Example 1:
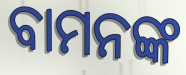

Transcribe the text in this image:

ବାମନଙ୍କ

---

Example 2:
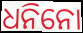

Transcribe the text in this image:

ଧନିନୋ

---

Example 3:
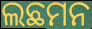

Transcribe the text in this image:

ଲଛମନ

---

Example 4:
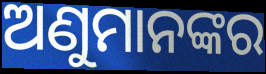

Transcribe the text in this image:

ଅଣୁମାନଙ୍କର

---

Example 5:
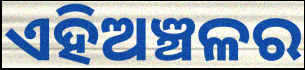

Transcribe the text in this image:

ଏହିଅଞ୍ଚଳର